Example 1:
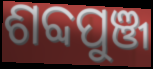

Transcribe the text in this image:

ଶବ୍ଦପୁଞ୍ଜ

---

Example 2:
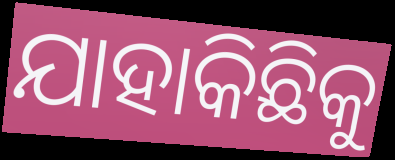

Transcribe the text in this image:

ଯାହାକିଛିକୁ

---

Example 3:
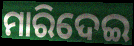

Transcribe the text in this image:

ମାରିଦେଇ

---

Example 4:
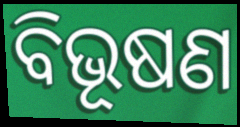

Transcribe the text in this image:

ବିଭୂଷଣ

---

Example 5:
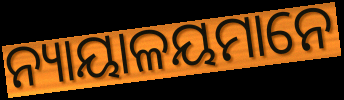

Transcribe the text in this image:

ନ୍ୟାୟାଳୟମାନେ